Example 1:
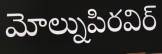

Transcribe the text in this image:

మోల్నుపిరవిర్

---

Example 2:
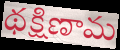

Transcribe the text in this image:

థక్షిణామ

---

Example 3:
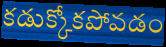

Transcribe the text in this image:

కడుక్కోకపోవడం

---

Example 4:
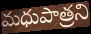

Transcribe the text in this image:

మధుపాత్రని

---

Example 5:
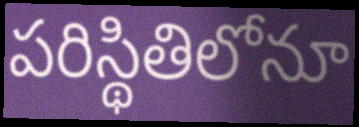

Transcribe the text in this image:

పరిస్థితిలోనూ